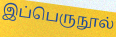
இப்பெருநூல்